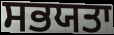
ਸਭਯਤਾ